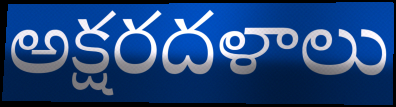
అక్షరదళాలు